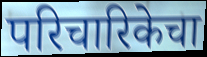
परिचारिकेचा